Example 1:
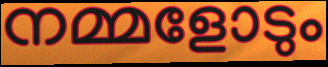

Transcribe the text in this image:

നമ്മളോടും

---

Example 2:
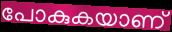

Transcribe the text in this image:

പോകുകയാണ്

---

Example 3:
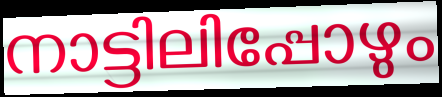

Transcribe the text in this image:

നാട്ടിലിപ്പോഴും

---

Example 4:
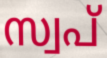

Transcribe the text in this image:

സ്വപ്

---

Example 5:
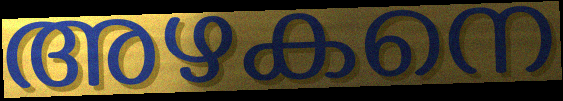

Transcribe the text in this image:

അഴകനെ